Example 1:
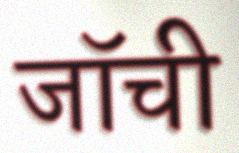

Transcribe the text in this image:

जॉची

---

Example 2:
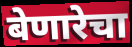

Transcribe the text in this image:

बेणारेचा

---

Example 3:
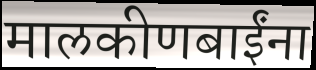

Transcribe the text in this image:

मालकीणबाईंना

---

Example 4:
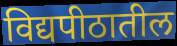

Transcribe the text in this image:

विद्यपीठातील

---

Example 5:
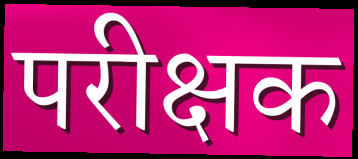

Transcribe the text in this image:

परीक्षक